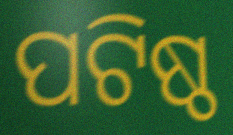
ପଟିଷ୍ଠ